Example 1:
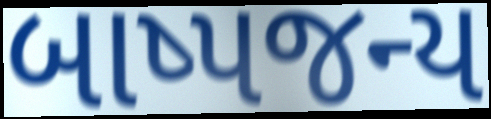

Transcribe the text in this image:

બાષ્પજન્ય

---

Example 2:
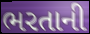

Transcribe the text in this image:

ભરતાની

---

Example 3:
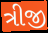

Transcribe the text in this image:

ત્રીજી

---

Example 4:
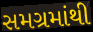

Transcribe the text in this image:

સમગ્રમાંથી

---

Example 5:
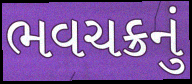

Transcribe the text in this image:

ભવચક્રનું